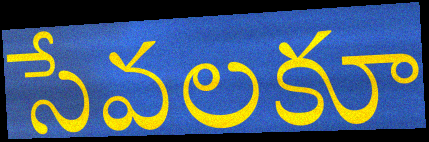
సేవలకూ